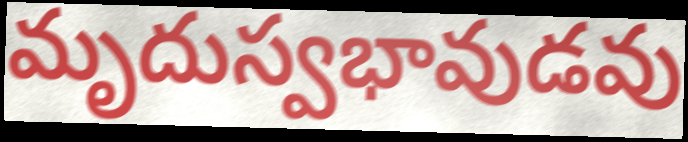
మృదుస్వభావుడవు